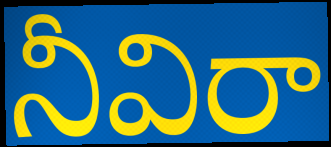
నీవిరా